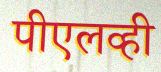
पीएलव्ही